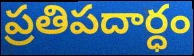
ప్రతిపదార్ధం